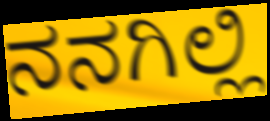
ನನಗಿಲ್ಲಿ